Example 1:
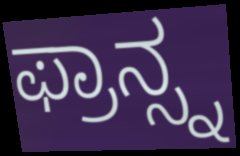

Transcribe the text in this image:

ಫ್ರಾನ್ಸ್ನ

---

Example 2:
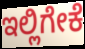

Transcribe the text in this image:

ಇಲ್ಲಿಗೇಕೆ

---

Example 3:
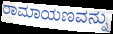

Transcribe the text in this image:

ರಾಮಾಯಣವನ್ನು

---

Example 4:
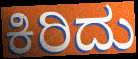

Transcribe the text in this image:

ಕಿರಿದು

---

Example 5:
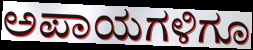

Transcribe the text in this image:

ಅಪಾಯಗಳಿಗೂ